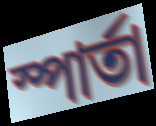
স্পার্তা